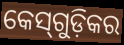
କେସ୍‌ଗୁଡ଼ିକର